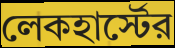
লেকহার্স্টের